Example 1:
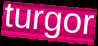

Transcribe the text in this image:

turgor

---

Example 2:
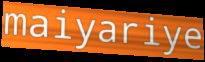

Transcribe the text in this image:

maiyariye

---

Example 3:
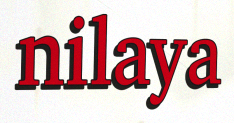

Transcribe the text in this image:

nilaya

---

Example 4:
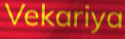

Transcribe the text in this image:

Vekariya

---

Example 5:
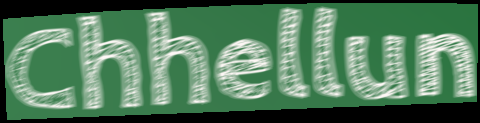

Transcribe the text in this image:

Chhellun